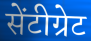
सेंटीग्रेट